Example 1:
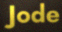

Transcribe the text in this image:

Jode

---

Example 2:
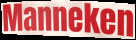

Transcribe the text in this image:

Manneken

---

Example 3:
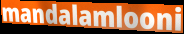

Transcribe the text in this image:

mandalamlooni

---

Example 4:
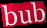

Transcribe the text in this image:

bub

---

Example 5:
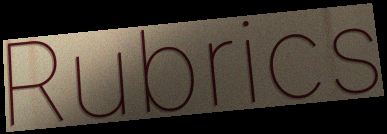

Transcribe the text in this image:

Rubrics